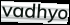
vadhyo